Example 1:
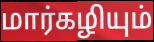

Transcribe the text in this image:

மார்கழியும்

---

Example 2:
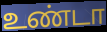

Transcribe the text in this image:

உண்டா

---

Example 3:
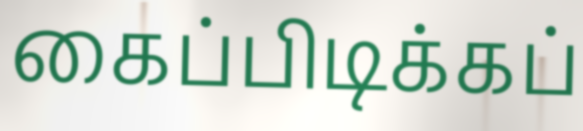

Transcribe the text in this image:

கைப்பிடிக்கப்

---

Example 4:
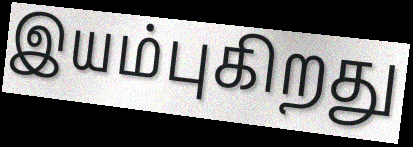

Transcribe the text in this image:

இயம்புகிறது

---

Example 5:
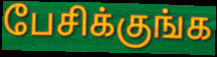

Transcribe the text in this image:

பேசிக்குங்க